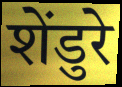
शेंडुरे